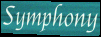
Symphony